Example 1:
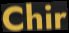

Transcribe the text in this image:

Chir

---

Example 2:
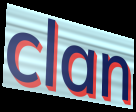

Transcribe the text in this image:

clan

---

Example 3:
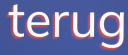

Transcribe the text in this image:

terug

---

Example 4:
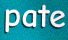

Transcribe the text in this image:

pate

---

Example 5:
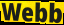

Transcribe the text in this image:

Webb